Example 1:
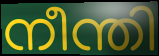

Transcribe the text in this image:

നീന്തി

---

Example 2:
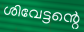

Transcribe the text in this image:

ശിവേട്ടന്റെ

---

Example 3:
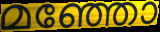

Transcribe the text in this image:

മഞ്ഞോ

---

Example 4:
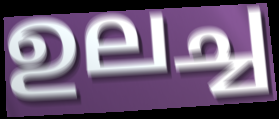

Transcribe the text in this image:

ഉലച്ച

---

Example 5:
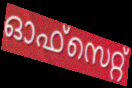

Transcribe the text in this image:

ഓഫ്സെറ്റ്